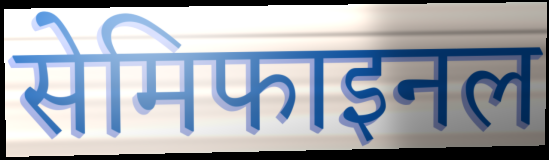
सेमिफाइनल